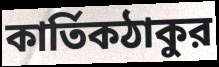
কার্তিকঠাকুর